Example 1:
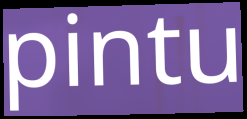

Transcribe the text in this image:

pintu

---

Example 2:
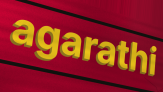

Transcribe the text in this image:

agarathi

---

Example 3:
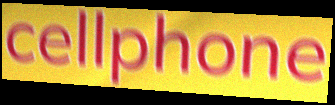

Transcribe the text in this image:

cellphone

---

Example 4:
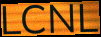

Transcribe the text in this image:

LCNL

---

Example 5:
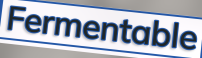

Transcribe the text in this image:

Fermentable